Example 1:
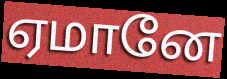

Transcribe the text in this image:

ஏமானே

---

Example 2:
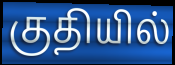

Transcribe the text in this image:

குதியில்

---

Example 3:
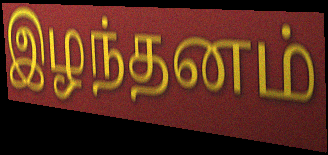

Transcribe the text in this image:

இழந்தனம்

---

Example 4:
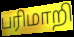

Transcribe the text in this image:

பரிமாறி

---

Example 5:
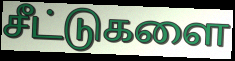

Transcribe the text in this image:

சீட்டுகளை